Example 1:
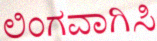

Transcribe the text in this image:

ಲಿಂಗವಾಗಿಸಿ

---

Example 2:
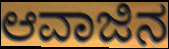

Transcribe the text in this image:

ಆವಾಜಿನ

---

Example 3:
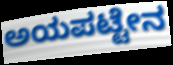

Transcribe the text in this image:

ಅಯಪಟ್ಟೇನ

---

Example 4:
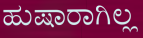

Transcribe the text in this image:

ಹುಷಾರಾಗಿಲ್ಲ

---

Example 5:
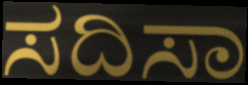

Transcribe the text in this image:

ಸದಿಸಾ